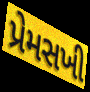
પ્રેમસખી